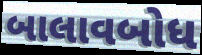
બાલાવબોધ